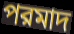
পরমাদ